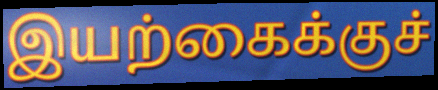
இயற்கைக்குச்